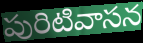
పురిటివాసన